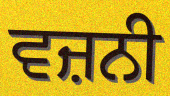
ਵਜ਼ਨੀ